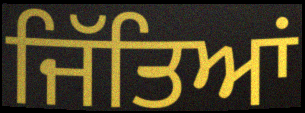
ਜਿੱਤਿਆਂ